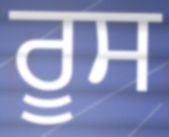
ਰੂਸ